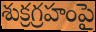
శుక్రగ్రహంపై